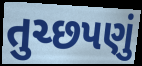
તુચ્છપણું